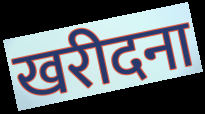
खरीदना